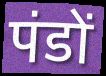
पंडों